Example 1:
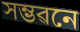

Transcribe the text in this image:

সম্ভৱনে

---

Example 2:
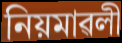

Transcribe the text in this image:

নিয়মাৱলী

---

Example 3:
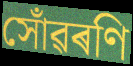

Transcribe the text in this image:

সোঁৱৰণি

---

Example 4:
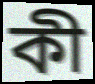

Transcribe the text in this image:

কী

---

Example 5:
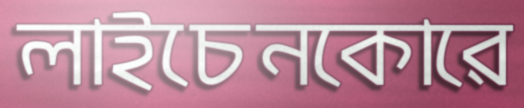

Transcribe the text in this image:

লাইচেনকোৱে